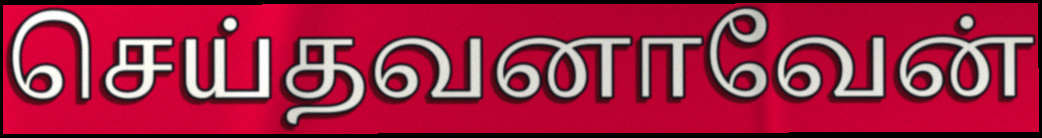
செய்தவனாவேன்